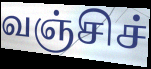
வஞ்சிச்